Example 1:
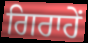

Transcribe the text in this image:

ਗਿਰਾਹੇਂ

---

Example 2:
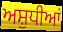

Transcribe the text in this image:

ਅਸ਼ੁਧੀਆਂ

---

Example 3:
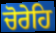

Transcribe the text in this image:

ਚੋਰੇਹਿ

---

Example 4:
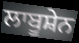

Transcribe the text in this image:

ਲਾਬੂਸ਼ੇਨ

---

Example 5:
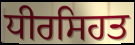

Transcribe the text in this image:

ਧੀਰਸਿਹਤ